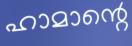
ഹാമാന്റെ